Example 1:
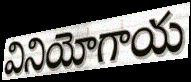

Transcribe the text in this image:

వినియోగాయ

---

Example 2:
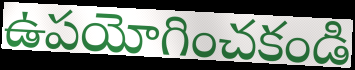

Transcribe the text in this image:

ఉపయోగించకండి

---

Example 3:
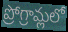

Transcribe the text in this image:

ప్రోగ్రామ్లలో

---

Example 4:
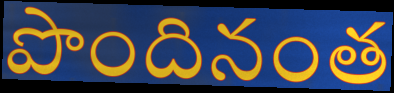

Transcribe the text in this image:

పొందినంత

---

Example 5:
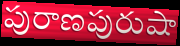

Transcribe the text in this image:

పురాణపురుషా